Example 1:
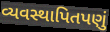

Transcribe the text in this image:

વ્યવસ્થાપિતપણું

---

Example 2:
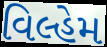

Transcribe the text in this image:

વિલ્હેમ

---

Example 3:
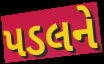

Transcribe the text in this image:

પડલને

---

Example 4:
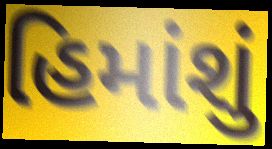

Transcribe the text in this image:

હિમાંશું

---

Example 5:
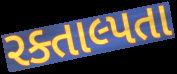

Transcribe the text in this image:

રક્તાલ્પતા